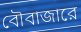
বৌবাজারে